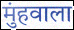
मुंहवाला